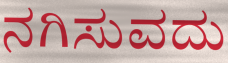
ನಗಿಸುವದು